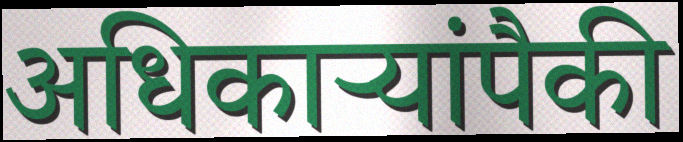
अधिकार्‍यांपैकी